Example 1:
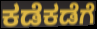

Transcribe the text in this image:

ಕಡೆಕಡೆಗೆ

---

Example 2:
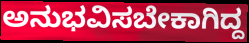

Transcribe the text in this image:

ಅನುಭವಿಸಬೇಕಾಗಿದ್ದ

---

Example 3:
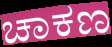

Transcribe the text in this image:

ಚಾಕಣ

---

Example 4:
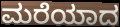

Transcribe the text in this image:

ಮರೆಯಾದ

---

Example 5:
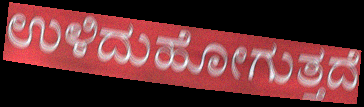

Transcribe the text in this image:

ಉಳಿದುಹೋಗುತ್ತದೆ